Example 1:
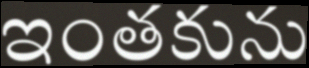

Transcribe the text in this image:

ఇంతకును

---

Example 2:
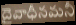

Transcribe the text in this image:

దైవాధీనమనీ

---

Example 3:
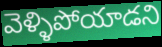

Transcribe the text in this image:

వెళ్ళిపోయాడని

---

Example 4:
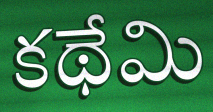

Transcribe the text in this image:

కథేమి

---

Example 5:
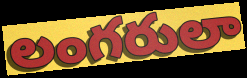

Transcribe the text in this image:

లంగరులా